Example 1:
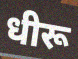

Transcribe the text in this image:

धीरू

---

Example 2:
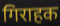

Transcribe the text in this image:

गिराहक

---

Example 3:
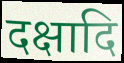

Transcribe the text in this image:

दक्षादि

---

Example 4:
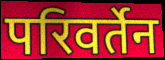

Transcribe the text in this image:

परिवर्तेन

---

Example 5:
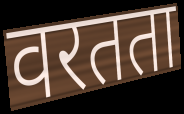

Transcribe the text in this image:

वरतता